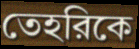
তেহরিকে